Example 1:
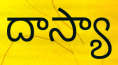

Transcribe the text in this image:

దాస్యా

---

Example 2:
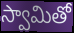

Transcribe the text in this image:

స్వామితో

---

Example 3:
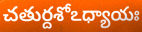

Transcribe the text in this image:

చతుర్దశోఽధ్యాయః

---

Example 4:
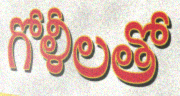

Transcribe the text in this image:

గోళీలతో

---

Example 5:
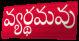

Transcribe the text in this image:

వ్యర్థమవు